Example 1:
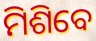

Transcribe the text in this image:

ମିଶିବେ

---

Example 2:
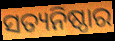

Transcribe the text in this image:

ସତ୍ୟନିଷ୍ଠାର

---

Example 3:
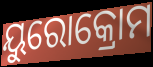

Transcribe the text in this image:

ୟୁରୋକ୍ରୋମ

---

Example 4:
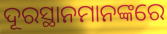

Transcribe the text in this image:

ଦୂରସ୍ଥାନମାନଙ୍କରେ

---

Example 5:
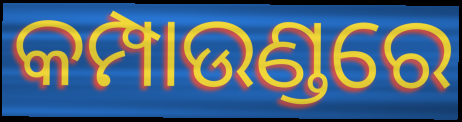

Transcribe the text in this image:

କମ୍ପାଉଣ୍ଡରେ